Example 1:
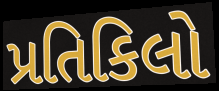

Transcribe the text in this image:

પ્રતિકિલો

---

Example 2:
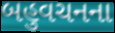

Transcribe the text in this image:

બહુવચનના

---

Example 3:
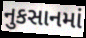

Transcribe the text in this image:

નુકસાનમાં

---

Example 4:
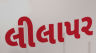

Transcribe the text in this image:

લીલાપર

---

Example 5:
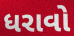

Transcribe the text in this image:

ધરાવો